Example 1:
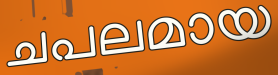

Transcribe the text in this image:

ചപലമായ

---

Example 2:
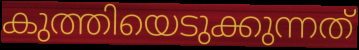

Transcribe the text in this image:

കുത്തിയെടുക്കുന്നത്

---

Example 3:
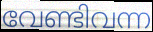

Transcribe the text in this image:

വേണ്ടിവന്ന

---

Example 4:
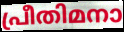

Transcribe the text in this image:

പ്രീതിമനാ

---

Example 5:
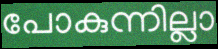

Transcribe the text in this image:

പോകുന്നില്ലാ